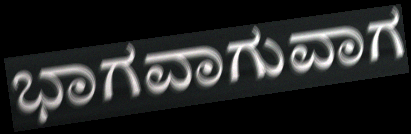
ಭಾಗವಾಗುವಾಗ